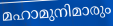
മഹാമുനിമാരും